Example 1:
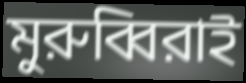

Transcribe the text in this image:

মুরুব্বিরাই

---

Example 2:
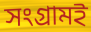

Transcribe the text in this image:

সংগ্রামই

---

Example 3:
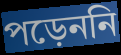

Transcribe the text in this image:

পড়েননি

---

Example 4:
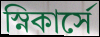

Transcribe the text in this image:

স্নিকার্সে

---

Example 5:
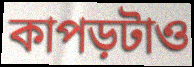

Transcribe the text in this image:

কাপড়টাও